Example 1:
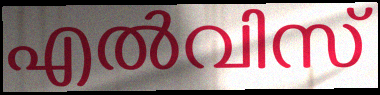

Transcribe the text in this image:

എൽവിസ്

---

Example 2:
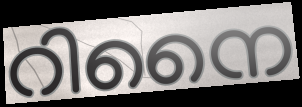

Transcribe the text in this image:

റിനൈ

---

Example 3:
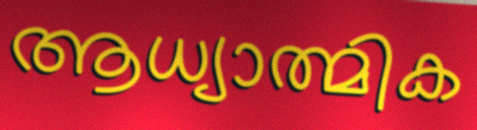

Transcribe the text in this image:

ആധ്യാത്മിക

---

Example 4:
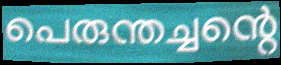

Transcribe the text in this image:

പെരുന്തച്ചന്റെ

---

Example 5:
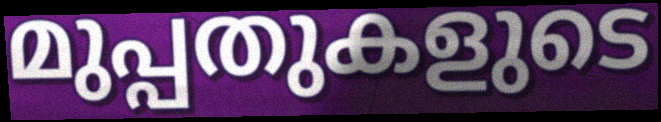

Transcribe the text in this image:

മുപ്പതുകളുടെ